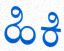
ಹಿಕಿ